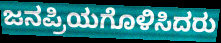
ಜನಪ್ರಿಯಗೊಳಿಸಿದರು